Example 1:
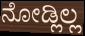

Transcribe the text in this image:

ನೋಡ್ಲಿಲ್ಲ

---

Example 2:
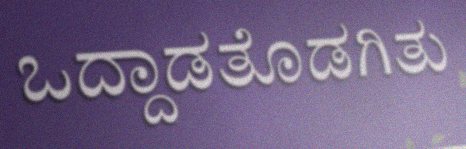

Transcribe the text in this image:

ಒದ್ದಾಡತೊಡಗಿತು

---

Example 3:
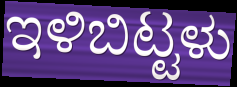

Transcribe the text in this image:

ಇಳಿಬಿಟ್ಟಳು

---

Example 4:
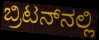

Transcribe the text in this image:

ಬ್ರಿಟನ್‌ನಲ್ಲಿ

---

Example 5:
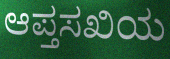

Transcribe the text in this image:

ಆಪ್ತಸಖಿಯ